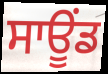
ਸਾਊਂਡ